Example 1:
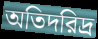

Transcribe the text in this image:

অতিদরিদ্র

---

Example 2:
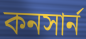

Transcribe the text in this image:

কনসার্ন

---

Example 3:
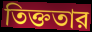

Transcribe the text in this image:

তিক্ততার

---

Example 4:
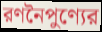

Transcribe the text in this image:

রণনৈপুণ্যের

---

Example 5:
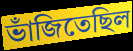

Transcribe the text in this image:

ভাঁজিতেছিল